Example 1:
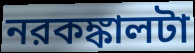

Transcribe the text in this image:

নরকঙ্কালটা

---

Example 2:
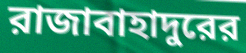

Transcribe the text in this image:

রাজাবাহাদুরের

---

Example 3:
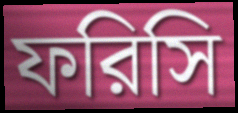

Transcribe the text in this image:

ফরিসি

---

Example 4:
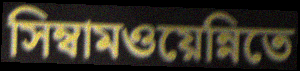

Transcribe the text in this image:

সিম্বামওয়েন্নিতে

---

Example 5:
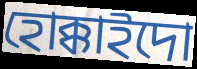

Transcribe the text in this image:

হোক্কাইদো